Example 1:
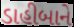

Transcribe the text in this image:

ડાહીબાને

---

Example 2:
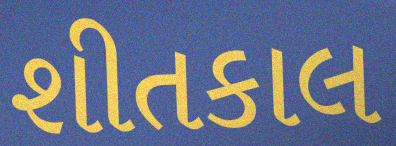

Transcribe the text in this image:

શીતકાલ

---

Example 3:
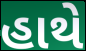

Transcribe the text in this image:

હાથે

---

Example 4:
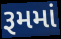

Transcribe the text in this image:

રૂમમાં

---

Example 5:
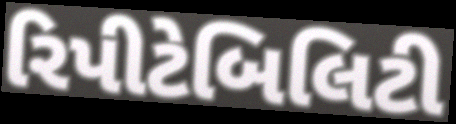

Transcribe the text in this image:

રિપીટેબિલિટી